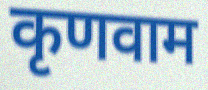
कृणवाम